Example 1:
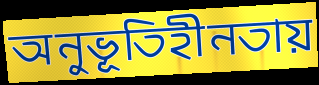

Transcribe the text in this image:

অনুভূতিহীনতায়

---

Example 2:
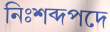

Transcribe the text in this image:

নিঃশব্দপদে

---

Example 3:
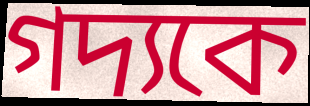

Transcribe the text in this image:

গদ্যকে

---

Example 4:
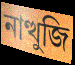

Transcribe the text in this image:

নাত্থুজি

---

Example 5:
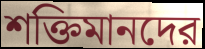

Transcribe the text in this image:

শক্তিমানদের